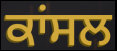
ਕਾਂਸਲ